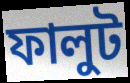
ফালুট